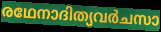
രഥേനാദിത്യവർചസാ